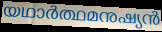
യഥാർത്ഥമനുഷ്യൻ